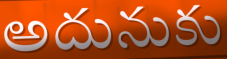
అదునుకు